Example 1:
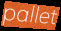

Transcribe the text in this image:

pallet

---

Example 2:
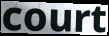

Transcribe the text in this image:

court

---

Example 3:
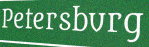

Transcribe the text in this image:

Petersburg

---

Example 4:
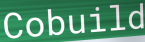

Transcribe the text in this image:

Cobuild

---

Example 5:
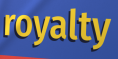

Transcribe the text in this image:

royalty